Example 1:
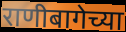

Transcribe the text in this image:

राणीबागेच्या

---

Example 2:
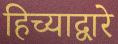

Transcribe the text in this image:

हिच्याद्वारे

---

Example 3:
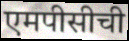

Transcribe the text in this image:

एमपीसीची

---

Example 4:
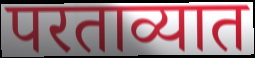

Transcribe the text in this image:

परताव्यात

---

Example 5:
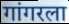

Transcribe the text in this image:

गांगरला